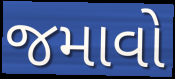
જમાવો